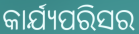
କାର୍ଯ୍ୟପରିସର